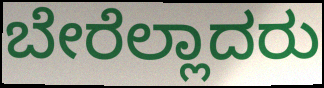
ಬೇರೆಲ್ಲಾದರು